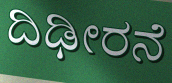
ದಿಢೀರನೆ